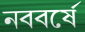
নববর্ষে